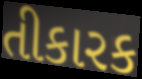
તીકારક